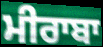
ਮੀਰਾਬਾ